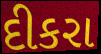
દીકરા